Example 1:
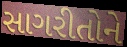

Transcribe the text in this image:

સાગરીતોને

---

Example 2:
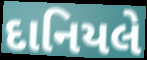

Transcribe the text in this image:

દાનિયલે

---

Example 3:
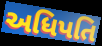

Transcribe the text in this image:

અધિપતિ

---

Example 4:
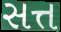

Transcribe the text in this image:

સત્ત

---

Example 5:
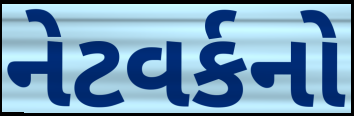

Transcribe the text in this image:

નેટવર્કનો